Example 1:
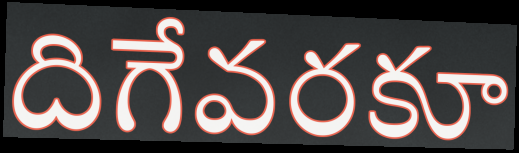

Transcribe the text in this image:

దిగేవరకూ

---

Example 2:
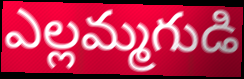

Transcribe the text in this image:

ఎల్లమ్మగుడి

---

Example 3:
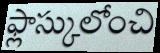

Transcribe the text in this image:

ఫ్లాస్కులోంచి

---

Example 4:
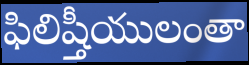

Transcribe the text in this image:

ఫిలిష్తీయులంతా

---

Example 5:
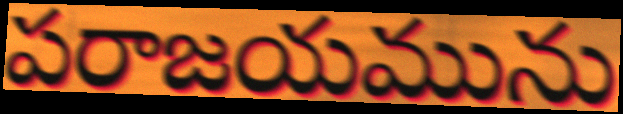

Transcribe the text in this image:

పరాజయమును